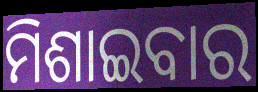
ମିଶାଇବାର